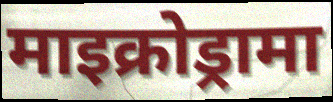
माइक्रोड्रामा